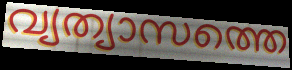
വ്യത്യാസത്തെ